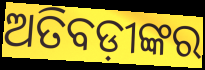
ଅତିବଡ଼ୀଙ୍କର